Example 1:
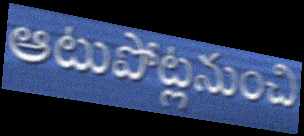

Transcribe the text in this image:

ఆటుపోట్లనుంచి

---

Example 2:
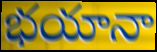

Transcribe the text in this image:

భయానా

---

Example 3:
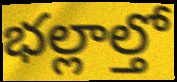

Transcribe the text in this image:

భల్లాల్తో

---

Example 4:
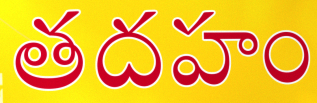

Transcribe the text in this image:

తదహం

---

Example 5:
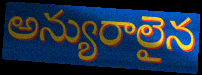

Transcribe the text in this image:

అన్యురాలైన